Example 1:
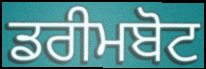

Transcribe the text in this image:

ਡਰੀਮਬੋਟ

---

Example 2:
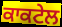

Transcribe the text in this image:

ਕਾਕਟੇਲ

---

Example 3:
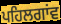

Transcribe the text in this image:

ਪਹਿਲਗਾਂਵ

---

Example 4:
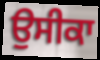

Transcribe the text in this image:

ਉਸੀਕਾ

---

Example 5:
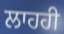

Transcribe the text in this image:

ਲਾਹਹੀ